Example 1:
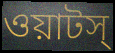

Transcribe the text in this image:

ওয়াটস্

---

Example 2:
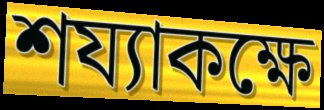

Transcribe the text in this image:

শয্যাকক্ষে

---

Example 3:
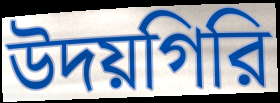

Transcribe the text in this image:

উদয়গিরি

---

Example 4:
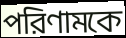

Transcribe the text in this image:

পরিণামকে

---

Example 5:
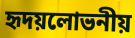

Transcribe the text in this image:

হৃদয়লোভনীয়